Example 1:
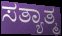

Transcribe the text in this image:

ಸತ್ಯಾತ್ಮ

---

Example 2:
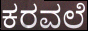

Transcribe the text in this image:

ಕರವಲೆ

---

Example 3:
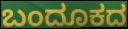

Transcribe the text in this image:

ಬಂದೂಕದ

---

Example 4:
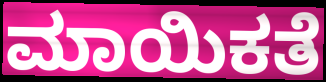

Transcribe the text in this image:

ಮಾಯಿಕತೆ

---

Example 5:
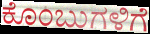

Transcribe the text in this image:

ಕೊಂಬುಗಳಿಗೆ